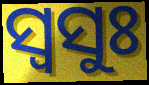
ସ୍ଵସୁଃ